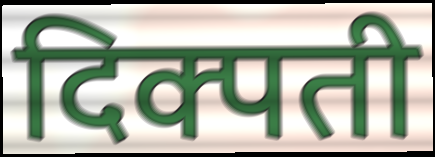
दिक्पती